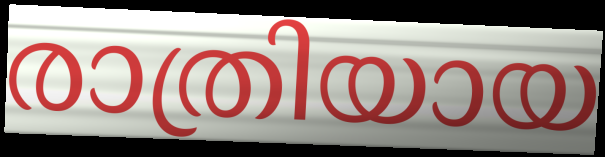
രാത്രിയായ